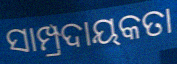
ସାମ୍ପ୍ରଦାୟକତା